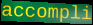
accompli